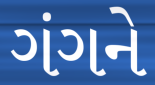
ગંગને